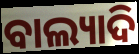
ବାଲ୍ୟାଦି